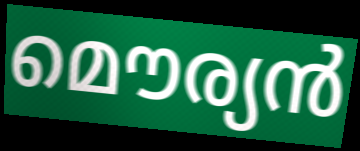
മൌര്യൻ